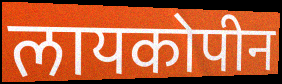
लायकोपीन